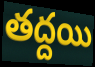
తద్దయి